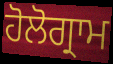
ਹੋਲੋਗ੍ਰਾਮ